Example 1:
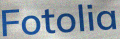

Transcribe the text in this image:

Fotolia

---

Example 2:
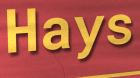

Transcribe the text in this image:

Hays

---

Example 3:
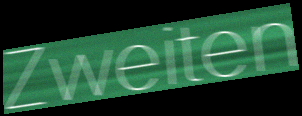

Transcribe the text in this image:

Zweiten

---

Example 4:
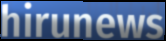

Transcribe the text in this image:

hirunews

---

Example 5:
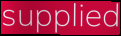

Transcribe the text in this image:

supplied